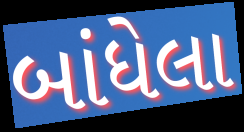
બાંધેલા